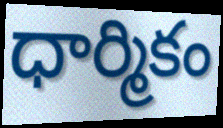
ధార్మికం